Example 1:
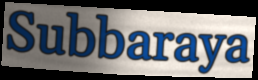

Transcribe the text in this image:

Subbaraya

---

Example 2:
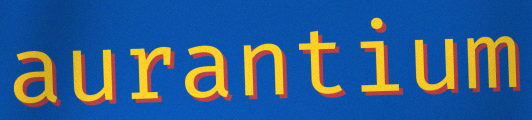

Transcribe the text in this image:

aurantium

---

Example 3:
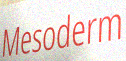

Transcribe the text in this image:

Mesoderm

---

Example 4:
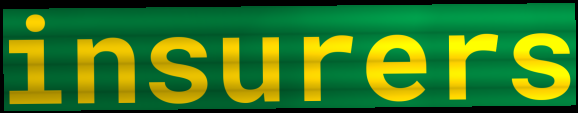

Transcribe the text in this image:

insurers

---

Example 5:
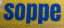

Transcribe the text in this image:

soppe